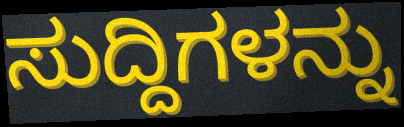
ಸುದ್ದಿಗಳನ್ನು